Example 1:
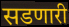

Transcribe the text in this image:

सडणारी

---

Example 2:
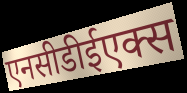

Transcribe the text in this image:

एनसीडीईएक्स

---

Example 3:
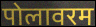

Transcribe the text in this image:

पोलावरम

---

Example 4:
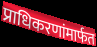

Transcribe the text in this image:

प्राधिकरणांमार्फत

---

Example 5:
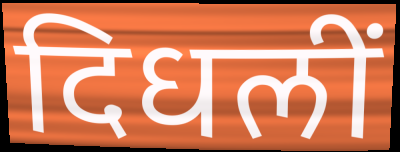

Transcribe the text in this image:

दिधलीं